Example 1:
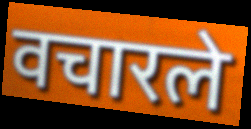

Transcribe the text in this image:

वचारले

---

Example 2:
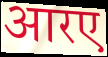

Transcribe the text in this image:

आरए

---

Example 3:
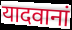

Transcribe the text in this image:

यादवानां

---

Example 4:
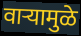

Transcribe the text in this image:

वाऱ्यामुळे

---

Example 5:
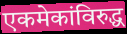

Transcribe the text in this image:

एकमेकांविरुद्ध